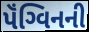
પૅંગ્વિનની